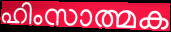
ഹിംസാത്മക